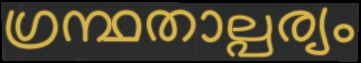
ഗ്രന്ഥതാല്പര്യം